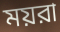
ময়রা